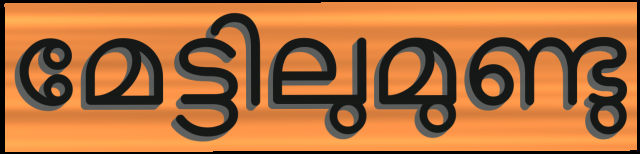
മേട്ടിലുമുണ്ടു